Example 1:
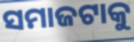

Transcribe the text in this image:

ସମାଜଟାକୁ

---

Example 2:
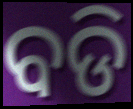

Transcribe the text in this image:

ବଡି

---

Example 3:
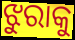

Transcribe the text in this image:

ଝୁରାକୁ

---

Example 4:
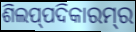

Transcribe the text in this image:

ଶିଲପ୍‍ପଦିକାରମ୍‍ର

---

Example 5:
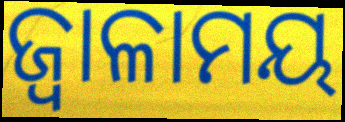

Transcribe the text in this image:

ଜ୍ୱାଳାମୟ